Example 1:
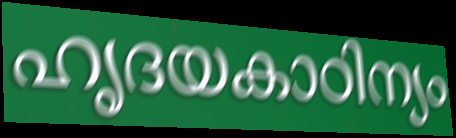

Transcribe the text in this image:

ഹൃദയകാഠിന്യം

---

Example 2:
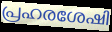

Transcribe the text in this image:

പ്രഹരശേഷി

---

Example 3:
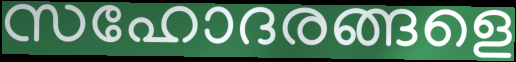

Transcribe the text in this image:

സഹോദരങ്ങളെ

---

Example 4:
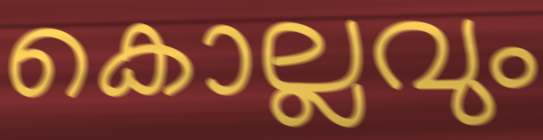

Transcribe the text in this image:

കൊല്ലവും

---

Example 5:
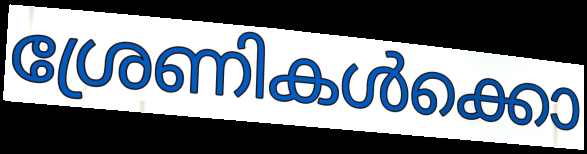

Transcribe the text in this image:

ശ്രേണികൾക്കൊ